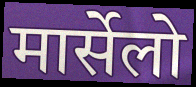
मार्सेलो